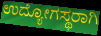
ಉದ್ಯೋಗಸ್ಥರಾಗಿ